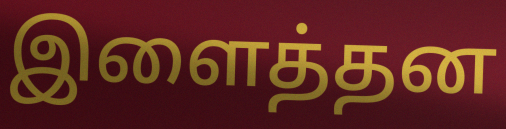
இளைத்தன